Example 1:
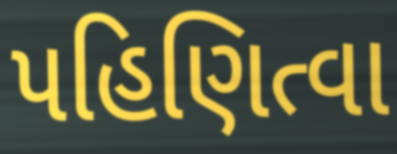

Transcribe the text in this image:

પહિણિત્વા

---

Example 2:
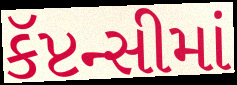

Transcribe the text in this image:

કૅપ્ટન્સીમાં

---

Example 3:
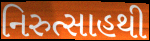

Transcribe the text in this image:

નિરુત્સાહથી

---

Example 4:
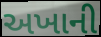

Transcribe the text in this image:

અખાની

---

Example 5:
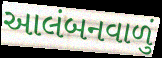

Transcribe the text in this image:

આલંબનવાળું